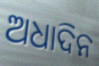
ଅଧାଦିନ